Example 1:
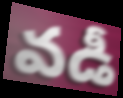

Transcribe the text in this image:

వడీ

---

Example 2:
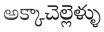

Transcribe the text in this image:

అక్కాచెల్లెళ్ళు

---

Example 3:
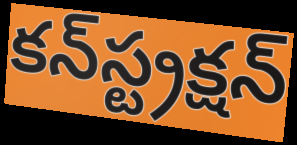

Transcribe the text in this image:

కన్‍స్ట్రక్షన్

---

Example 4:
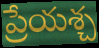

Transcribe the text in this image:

ప్రేయశ్చ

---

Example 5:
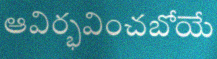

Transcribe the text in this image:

ఆవిర్భవించబోయే